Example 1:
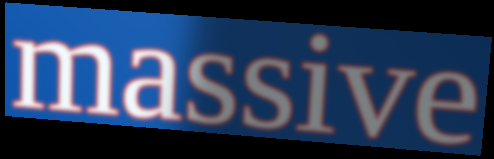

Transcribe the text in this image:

massive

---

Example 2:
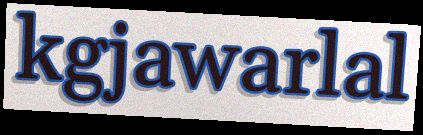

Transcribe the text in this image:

kgjawarlal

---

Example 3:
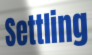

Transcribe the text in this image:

Settling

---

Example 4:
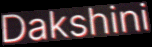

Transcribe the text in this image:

Dakshini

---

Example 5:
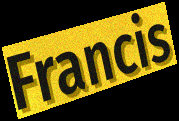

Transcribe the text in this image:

Francis